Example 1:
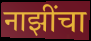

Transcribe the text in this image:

नाझींचा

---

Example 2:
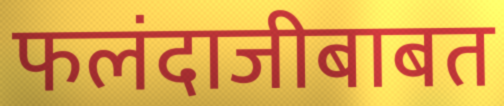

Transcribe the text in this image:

फलंदाजीबाबत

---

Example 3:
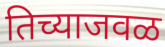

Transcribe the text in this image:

तिच्याजवळ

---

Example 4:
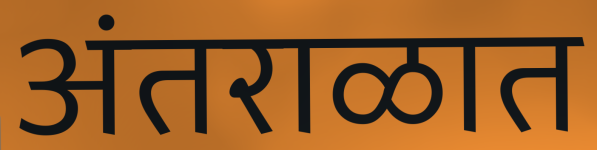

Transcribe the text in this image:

अंतराळात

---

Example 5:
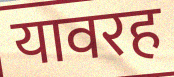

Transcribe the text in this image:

यावरह